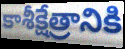
కాశీక్షేత్రానికి